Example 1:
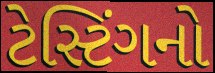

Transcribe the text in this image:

ટેસ્ટિંગનો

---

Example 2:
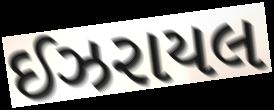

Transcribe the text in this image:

ઈઝરાયલ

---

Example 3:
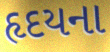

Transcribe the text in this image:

હૃદયના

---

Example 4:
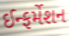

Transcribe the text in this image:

ઈન્ફર્મેશન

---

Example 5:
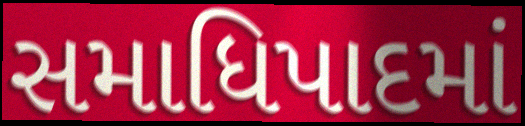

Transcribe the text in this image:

સમાધિપાદમાં